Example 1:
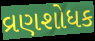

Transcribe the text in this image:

વ્રણશોધક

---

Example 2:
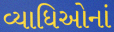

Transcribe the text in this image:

વ્યાધિઓનાં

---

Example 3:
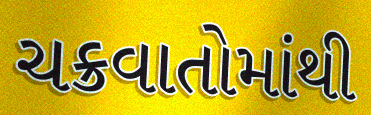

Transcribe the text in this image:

ચક્રવાતોમાંથી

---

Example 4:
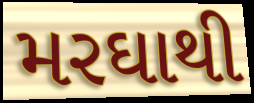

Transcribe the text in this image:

મરઘાથી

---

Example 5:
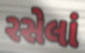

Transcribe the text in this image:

રસેલાં